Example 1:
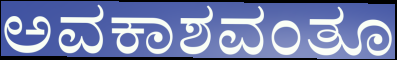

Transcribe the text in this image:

ಅವಕಾಶವಂತೂ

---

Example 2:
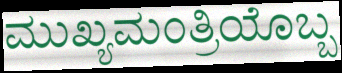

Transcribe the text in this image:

ಮುಖ್ಯಮಂತ್ರಿಯೊಬ್ಬ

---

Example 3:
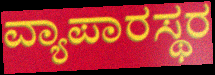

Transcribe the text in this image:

ವ್ಯಾಪಾರಸ್ಥರ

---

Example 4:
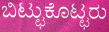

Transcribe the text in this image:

ಬಿಟ್ಟುಕೊಟ್ಟರು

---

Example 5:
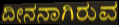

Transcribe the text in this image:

ದೀನನಾಗಿರುವ